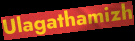
Ulagathamizh